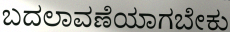
ಬದಲಾವಣೆಯಾಗಬೇಕು